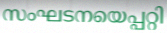
സംഘടനയെപ്പറ്റി